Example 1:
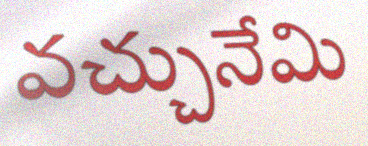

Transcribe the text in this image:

వచ్చునేమి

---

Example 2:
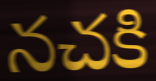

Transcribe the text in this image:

నచకి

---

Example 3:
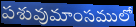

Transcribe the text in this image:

పశువుమాంసములో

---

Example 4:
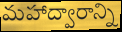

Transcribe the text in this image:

మహాద్వారాన్ని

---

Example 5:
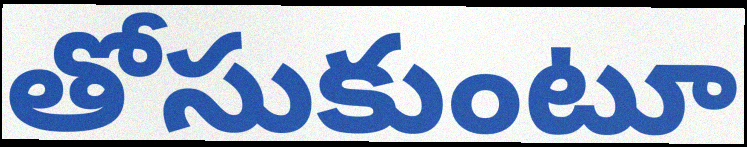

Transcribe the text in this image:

తోసుకుంటూ